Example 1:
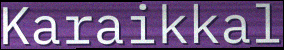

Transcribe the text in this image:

Karaikkal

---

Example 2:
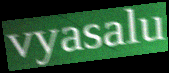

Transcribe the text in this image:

vyasalu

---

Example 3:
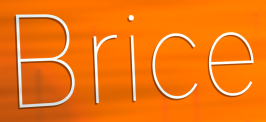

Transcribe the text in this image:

Brice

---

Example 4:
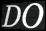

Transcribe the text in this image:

DO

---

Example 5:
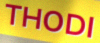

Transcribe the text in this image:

THODI